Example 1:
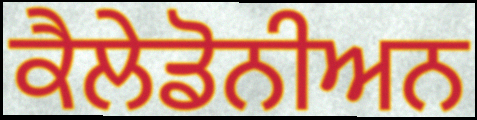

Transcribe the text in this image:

ਕੈਲੇਡੋਨੀਅਨ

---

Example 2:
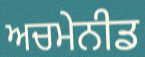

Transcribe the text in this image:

ਅਚਮੇਨੀਡ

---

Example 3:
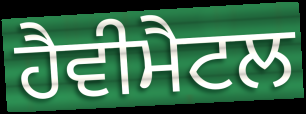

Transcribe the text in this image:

ਹੈਵੀਮੈਟਲ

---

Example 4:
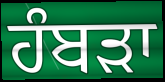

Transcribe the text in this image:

ਹੰਬੜਾ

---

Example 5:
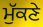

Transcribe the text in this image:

ਮੁੱਕਣੇ